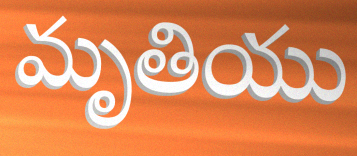
మృతియు